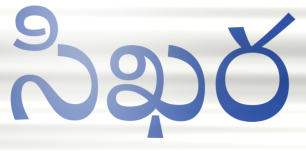
సిఖర